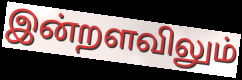
இன்றளவிலும்